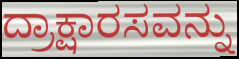
ದ್ರಾಕ್ಷಾರಸವನ್ನು